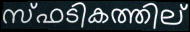
സ്ഫടികത്തില്